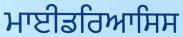
ਮਾਈਡਰਿਆਸਿਸ